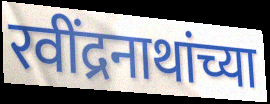
रवींद्रनाथांच्या